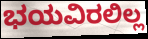
ಭಯವಿರಲಿಲ್ಲ